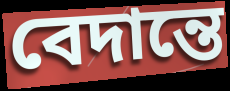
বেদান্তে